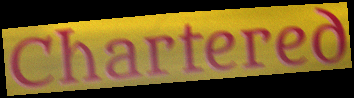
Chartered